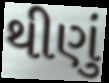
થીણું